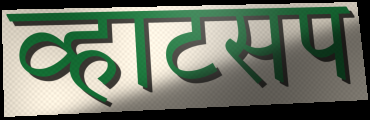
व्हाटसप